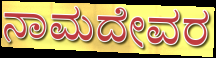
ನಾಮದೇವರ